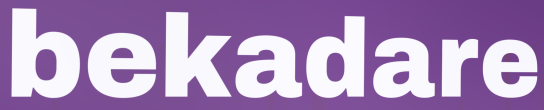
bekadare